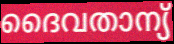
ദൈവതാന്യ്